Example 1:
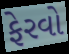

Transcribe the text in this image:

ફેરવો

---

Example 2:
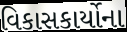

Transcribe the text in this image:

વિકાસકાર્યોના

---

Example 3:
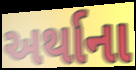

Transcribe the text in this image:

અર્થાના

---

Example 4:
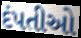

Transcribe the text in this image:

દંપતીઓ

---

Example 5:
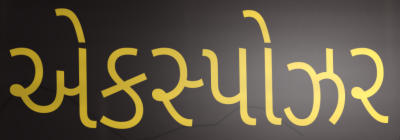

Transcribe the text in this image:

એકસ્પોઝર